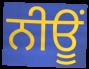
ਨੀਊਂ